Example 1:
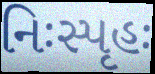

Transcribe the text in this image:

નિઃસ્પૃહઃ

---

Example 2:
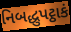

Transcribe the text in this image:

નિબદ્ધુપટ્ઠાકં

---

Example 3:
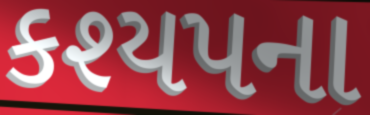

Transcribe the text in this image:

કશ્યપના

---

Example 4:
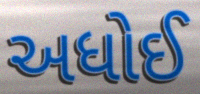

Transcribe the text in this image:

અધોઈ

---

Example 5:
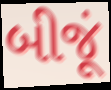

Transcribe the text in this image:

બીજૂં